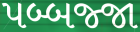
પબ્બજ્જા